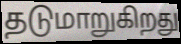
தடுமாறுகிறது